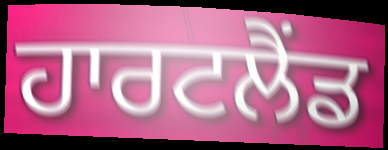
ਹਾਰਟਲੈਂਡ